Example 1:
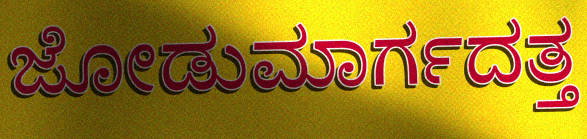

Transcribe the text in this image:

ಜೋಡುಮಾರ್ಗದತ್ತ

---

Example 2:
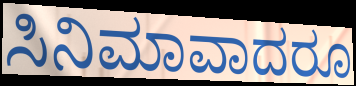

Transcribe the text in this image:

ಸಿನಿಮಾವಾದರೂ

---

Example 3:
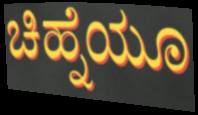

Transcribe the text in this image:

ಚಿಹ್ನೆಯೂ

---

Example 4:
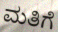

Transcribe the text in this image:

ಮತಿಗೆ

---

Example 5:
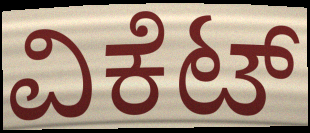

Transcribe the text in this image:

ವಿಕೆಟ್